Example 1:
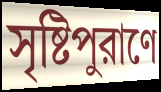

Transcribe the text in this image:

সৃষ্টিপুরাণে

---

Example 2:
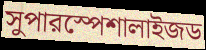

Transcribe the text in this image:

সুপারস্পেশালাইজড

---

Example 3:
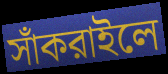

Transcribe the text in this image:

সাঁকরাইলে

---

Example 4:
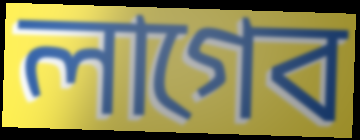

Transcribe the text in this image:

লাগেব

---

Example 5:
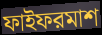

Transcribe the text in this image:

ফাইফরমাশ